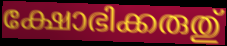
ക്ഷോഭിക്കരുതു്